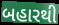
બહારથી